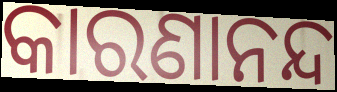
କାରଣାନନ୍ଦ